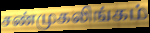
சண்முகலிங்கம்